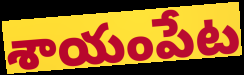
శాయంపేట